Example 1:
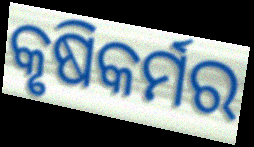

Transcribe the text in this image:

କୃଷିକର୍ମର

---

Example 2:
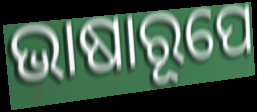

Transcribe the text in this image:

ଭାଷାରୂପେ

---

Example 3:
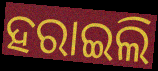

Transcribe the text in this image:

ହରାଇଲି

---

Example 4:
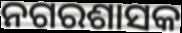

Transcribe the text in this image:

ନଗରଶାସକ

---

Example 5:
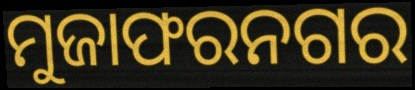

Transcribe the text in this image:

ମୁଜାଫରନଗର